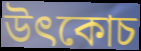
উৎকোচ